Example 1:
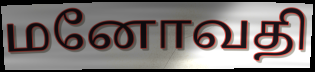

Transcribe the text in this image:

மனோவதி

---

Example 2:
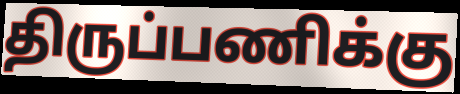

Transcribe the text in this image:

திருப்பணிக்கு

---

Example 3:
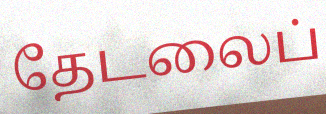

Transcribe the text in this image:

தேடலைப்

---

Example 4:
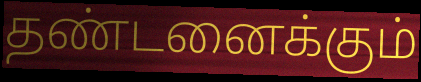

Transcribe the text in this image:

தண்டனைக்கும்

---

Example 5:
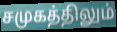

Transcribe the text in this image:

சமுகத்திலும்